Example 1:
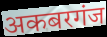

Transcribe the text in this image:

अकबरगंज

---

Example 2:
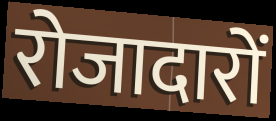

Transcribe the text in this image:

रोजादारों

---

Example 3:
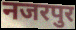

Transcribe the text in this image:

नजरपुर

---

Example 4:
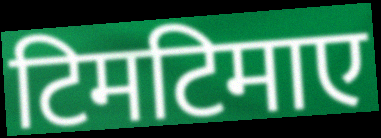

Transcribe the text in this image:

टिमटिमाए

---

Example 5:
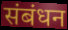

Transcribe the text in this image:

संबंधन